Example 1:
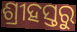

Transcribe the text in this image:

ଶ୍ରୀହସ୍ତରୁ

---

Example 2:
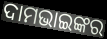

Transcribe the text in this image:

ଦାମଭାଇଙ୍କର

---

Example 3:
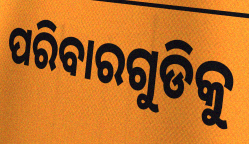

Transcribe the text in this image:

ପରିବାରଗୁଡିକୁ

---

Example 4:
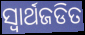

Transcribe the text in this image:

ସ୍ଵାର୍ଥଜଡିତ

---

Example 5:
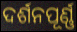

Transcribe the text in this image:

ଦର୍ଶନପୂର୍ଣ୍ଣ